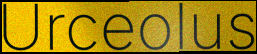
Urceolus